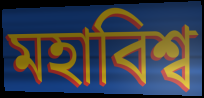
মহাবিশ্ব